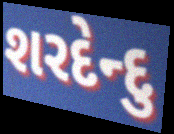
શરદેન્દુ